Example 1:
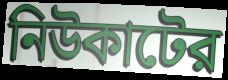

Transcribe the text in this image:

নিউকাটের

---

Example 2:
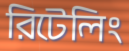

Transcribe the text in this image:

রিটেলিং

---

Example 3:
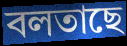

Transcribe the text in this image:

বলতাছে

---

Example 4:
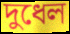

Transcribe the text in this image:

দুধেল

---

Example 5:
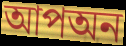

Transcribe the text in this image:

আপঅন